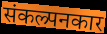
संकल्पनकार